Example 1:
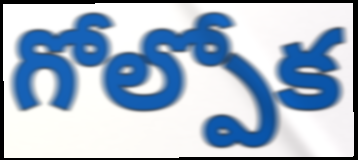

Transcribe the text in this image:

గోల్పోక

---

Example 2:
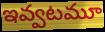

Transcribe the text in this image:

ఇవ్వటమూ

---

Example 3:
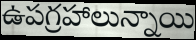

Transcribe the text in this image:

ఉపగ్రహాలున్నాయి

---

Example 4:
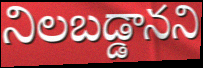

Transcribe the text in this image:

నిలబడ్డానని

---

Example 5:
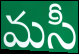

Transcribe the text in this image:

మసీ